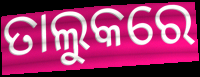
ତାଲୁକରେ